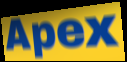
Apex